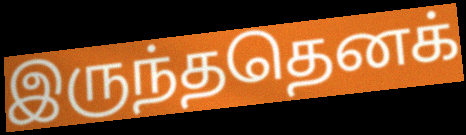
இருந்ததெனக்